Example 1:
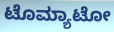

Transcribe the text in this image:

ಟೊಮ್ಯಾಟೋ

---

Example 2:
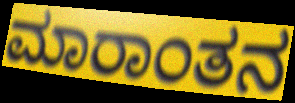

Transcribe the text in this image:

ಮಾರಾಂತನ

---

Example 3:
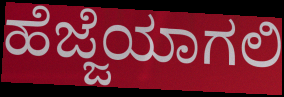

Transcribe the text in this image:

ಹೆಜ್ಜೆಯಾಗಲಿ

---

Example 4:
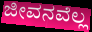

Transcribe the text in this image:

ಜೀವನವೆಲ್ಲ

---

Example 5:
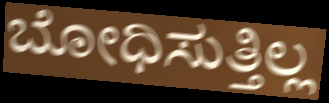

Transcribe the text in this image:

ಬೋಧಿಸುತ್ತಿಲ್ಲ